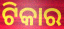
ଟିକାର